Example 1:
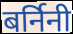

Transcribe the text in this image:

बर्निनी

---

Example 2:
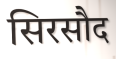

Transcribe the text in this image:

सिरसौद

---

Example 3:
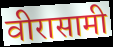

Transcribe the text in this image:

वीरासामी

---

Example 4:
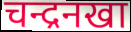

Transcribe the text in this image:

चन्द्रनखा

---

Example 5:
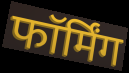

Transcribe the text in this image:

फॉर्मिंग